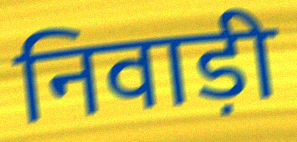
निवाड़ी